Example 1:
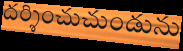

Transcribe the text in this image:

దర్శించుచుండును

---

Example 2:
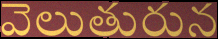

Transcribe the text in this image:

వెలుతురున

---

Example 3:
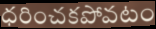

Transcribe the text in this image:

ధరించకపోవటం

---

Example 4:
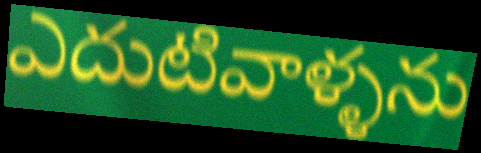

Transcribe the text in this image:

ఎదుటివాళ్ళను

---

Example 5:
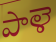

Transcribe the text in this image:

పాళె